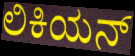
ಲಿಕಿಯನ್